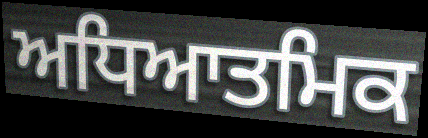
ਅਧਿਆਤਮਿਕ